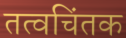
तत्वचिंतक